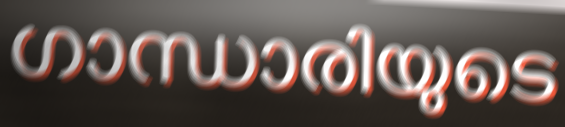
ഗാന്ധാരിയുടെ